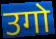
उगो